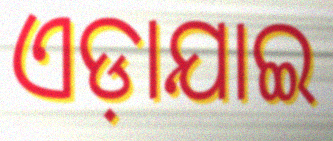
ଏଡ଼ାଯାଇ